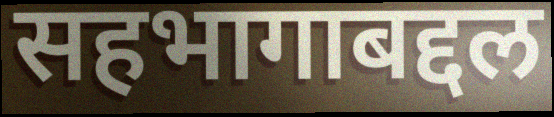
सहभागाबद्दल